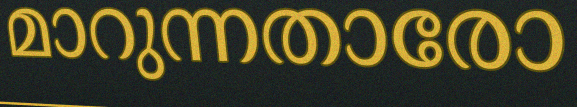
മാറുന്നതാരോ